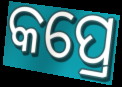
କପ୍ରେ